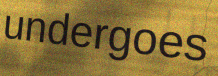
undergoes